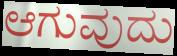
ಆಗುವುದು